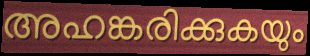
അഹങ്കരിക്കുകയും